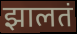
झालतं